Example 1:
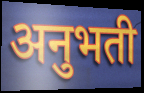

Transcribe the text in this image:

अनुभती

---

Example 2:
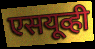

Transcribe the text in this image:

एसयूव्ही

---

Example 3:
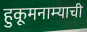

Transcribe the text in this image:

हुकूमनाम्याची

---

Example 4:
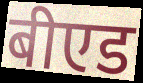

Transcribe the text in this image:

बीएड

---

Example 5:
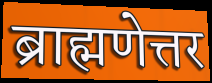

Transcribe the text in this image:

ब्राह्मणेत्तर